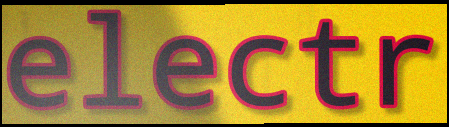
electr